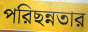
পরিছন্নতার